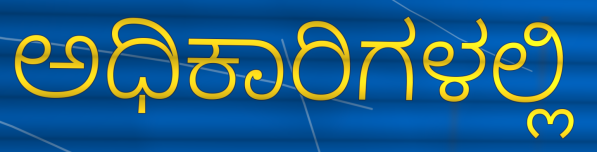
ಅಧಿಕಾರಿಗಳಲ್ಲಿ